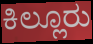
ಕಿಲ್ಲೂರು